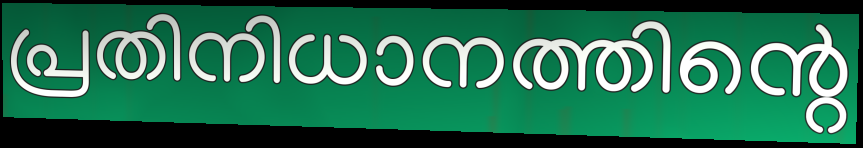
പ്രതിനിധാനത്തിന്റെ